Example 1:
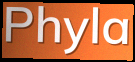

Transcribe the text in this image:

Phyla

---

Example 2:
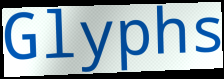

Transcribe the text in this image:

Glyphs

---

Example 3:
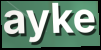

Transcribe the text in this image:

ayke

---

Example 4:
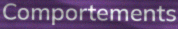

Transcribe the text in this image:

Comportements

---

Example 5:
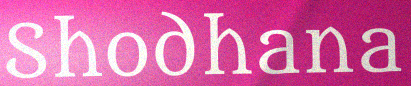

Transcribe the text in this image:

Shodhana